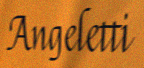
Angeletti